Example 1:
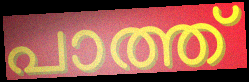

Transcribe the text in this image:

പാത്ത്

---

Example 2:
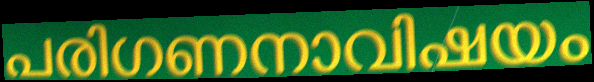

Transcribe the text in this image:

പരിഗണനാവിഷയം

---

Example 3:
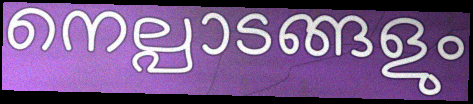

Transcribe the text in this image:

നെല്പാടങ്ങളും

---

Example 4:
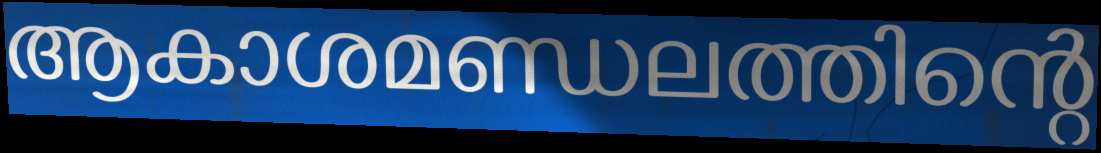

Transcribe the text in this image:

ആകാശമണ്ഡലത്തിന്റെ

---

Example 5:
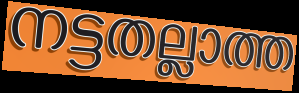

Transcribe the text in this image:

നട്ടതല്ലാത്ത